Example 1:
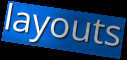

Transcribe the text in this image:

layouts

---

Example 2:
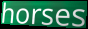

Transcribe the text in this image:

horses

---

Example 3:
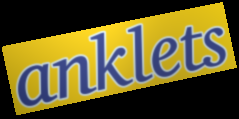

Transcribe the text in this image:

anklets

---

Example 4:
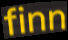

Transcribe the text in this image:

finn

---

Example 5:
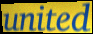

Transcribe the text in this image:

united